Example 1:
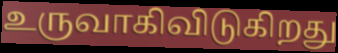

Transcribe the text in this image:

உருவாகிவிடுகிறது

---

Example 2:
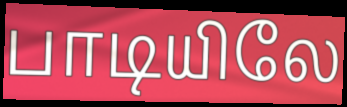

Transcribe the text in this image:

பாடியிலே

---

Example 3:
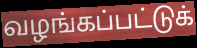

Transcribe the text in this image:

வழங்கப்பட்டுக்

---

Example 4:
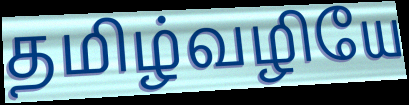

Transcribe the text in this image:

தமிழ்வழியே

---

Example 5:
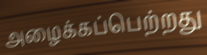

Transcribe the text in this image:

அழைக்கப்பெற்றது